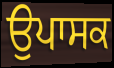
ਉਪਾਸਕ